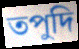
তপুদি